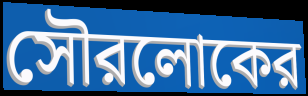
সৌরলোকের